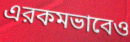
এরকমভাবেও